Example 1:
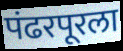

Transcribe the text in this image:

पंढरपूरला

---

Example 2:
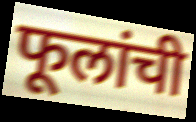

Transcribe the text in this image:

फूलांची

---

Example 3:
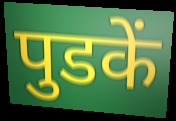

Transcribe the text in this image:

पुडकें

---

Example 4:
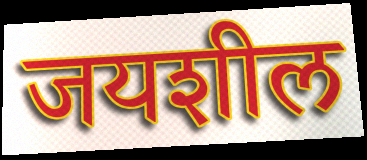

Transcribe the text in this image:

जयशील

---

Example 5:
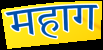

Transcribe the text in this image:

महाग